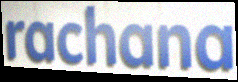
rachana